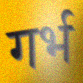
गर्भ